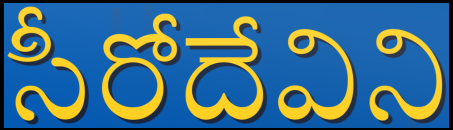
సీరోదేవిని